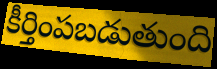
కీర్తింపబడుతుంది